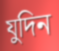
যুদিন